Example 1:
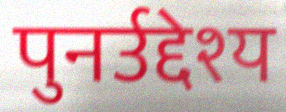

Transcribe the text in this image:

पुनर्उद्देश्य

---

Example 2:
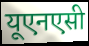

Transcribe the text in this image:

यूएनएसी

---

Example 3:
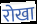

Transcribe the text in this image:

रोखा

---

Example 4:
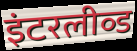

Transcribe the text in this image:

इंटरलीव्ड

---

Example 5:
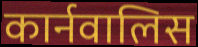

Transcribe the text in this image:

कार्नवालिस